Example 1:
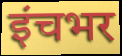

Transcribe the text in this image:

इंचभर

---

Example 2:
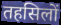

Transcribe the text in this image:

तहसिलों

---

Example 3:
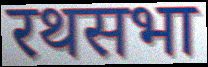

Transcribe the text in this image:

रथसभा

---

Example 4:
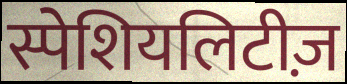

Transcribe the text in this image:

स्पेशियलिटीज़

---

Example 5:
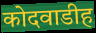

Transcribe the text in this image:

कोदवाडीह